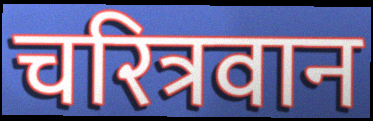
चरित्रवान